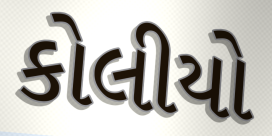
કોલીયો